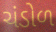
ચંડોળ